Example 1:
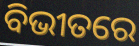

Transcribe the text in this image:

ବିଭୀତରେ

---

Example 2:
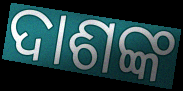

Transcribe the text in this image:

ଦାଶଙ୍କ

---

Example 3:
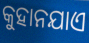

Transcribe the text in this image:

କୁହାନଯାଏ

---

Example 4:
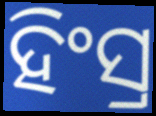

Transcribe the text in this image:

ହିଂସ୍ର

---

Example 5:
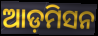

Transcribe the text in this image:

ଆଡ଼ମିସନ